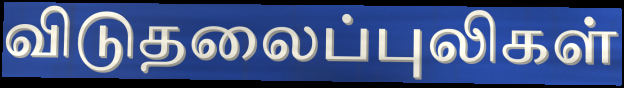
விடுதலைப்புலிகள்